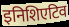
इनिशिएटिव